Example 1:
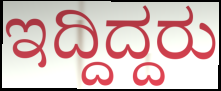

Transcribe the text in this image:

ಇದ್ದಿದ್ದರು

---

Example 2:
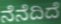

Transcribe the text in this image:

ನೆನೆದಿದೆ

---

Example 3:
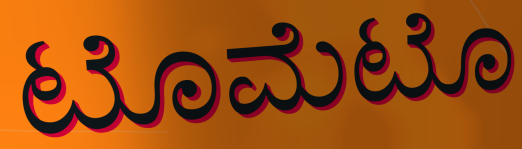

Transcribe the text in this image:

ಟೊಮೆಟೊ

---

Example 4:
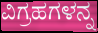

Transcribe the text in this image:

ವಿಗ್ರಹಗಳನ್ನ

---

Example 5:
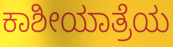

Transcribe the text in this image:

ಕಾಶೀಯಾತ್ರೆಯ